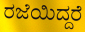
ರಜೆಯಿದ್ದರೆ